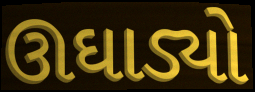
ઊઘાડ્યો